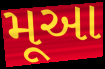
મૂઆ